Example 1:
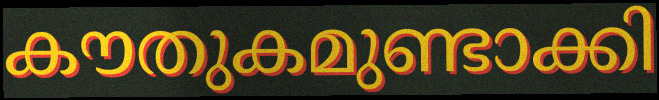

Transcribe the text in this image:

കൗതുകമുണ്ടാക്കി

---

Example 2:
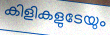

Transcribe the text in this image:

കിളികളുടേയും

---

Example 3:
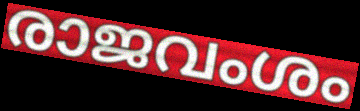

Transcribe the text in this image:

രാജവംശം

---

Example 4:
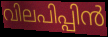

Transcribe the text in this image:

വിലപിപ്പിൻ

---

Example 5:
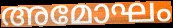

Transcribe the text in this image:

അമോഘം